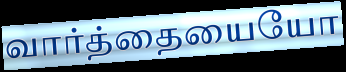
வார்த்தையையோ